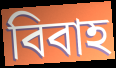
বিবাহ